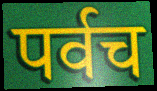
पर्वच